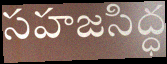
సహజసిద్ధ